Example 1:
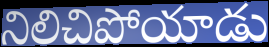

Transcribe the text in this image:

నిలిచిపోయాడు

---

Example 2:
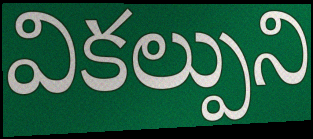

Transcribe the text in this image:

వికల్పుని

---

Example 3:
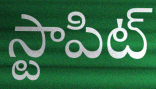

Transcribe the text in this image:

స్టాపిట్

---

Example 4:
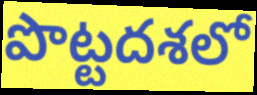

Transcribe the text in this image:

పొట్టదశలో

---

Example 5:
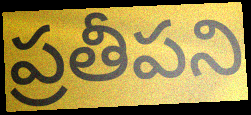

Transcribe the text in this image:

ప్రతీపని